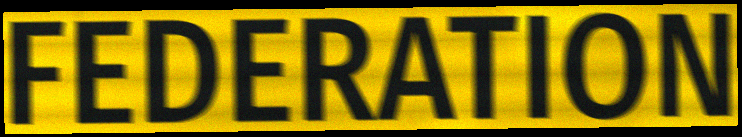
FEDERATION